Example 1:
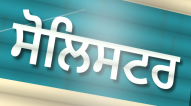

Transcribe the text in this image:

ਸੋਲਿਸਟਰ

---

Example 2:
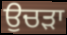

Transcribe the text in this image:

ਉਚੜਾ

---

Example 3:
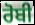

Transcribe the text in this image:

ਰੋਬੀ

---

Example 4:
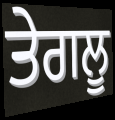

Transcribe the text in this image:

ਤੇਗਲੂ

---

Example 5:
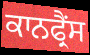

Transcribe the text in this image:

ਕਾਨਫ੍ਰੈਂਸ